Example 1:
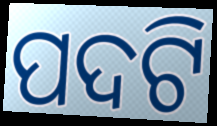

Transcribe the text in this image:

ପଦଟି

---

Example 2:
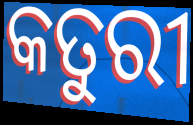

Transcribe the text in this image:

କତୁରୀ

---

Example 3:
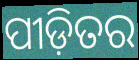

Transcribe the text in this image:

ପୀଡ଼ିତର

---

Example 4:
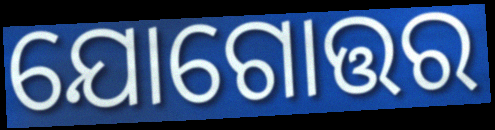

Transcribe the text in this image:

ଯୋଗୋତ୍ତର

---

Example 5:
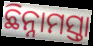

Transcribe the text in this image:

ଛିନ୍ନାମସ୍ତା